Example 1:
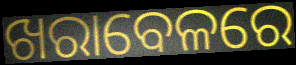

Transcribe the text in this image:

ଖରାବେଳରେ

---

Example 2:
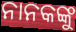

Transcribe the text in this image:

ନାନକଙ୍କୁ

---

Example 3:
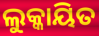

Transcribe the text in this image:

ଲୁକ୍କାୟିତ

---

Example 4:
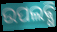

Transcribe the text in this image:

ଉପଲଵ୍ଧି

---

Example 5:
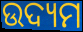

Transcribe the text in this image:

ଉଦ୍ୟମ